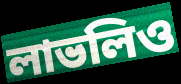
লাভলিও